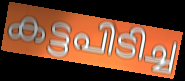
കട്ടപിടിച്ച